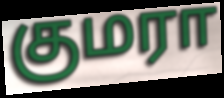
குமரா